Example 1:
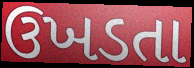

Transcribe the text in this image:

ઉખડતા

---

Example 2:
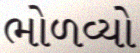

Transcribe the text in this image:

ભોળવ્યો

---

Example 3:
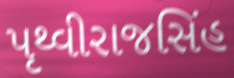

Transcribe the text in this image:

પૃથ્વીરાજસિંહ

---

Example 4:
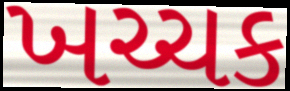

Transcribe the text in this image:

ખચ્ચક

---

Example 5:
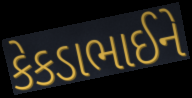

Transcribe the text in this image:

કેકડાભાઈને